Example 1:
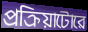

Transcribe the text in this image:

প্ৰক্ৰিয়াটোৱে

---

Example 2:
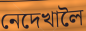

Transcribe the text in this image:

নেদেখালৈ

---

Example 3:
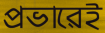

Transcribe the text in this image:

প্ৰভাৱেই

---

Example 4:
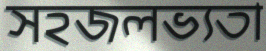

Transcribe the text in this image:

সহজলভ্যতা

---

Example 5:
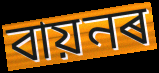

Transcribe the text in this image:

বায়নৰ